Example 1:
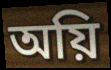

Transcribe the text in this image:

অয়ি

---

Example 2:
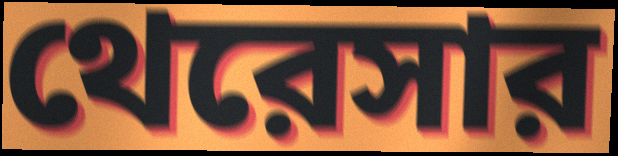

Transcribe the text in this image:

থেরেসার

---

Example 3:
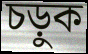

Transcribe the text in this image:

চড়ুক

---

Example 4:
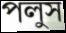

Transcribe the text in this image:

পলুস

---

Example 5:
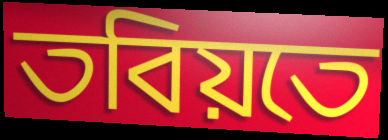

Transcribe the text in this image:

তবিয়তে